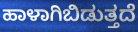
ಹಾಳಾಗಿಬಿಡುತ್ತದೆ